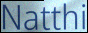
Natthi